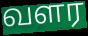
வளர